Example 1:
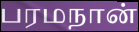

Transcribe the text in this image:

பரமநான்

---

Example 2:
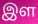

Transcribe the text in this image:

இள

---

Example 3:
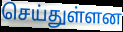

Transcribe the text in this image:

செய்துள்ளன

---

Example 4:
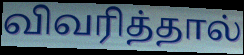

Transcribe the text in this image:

விவரித்தால்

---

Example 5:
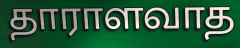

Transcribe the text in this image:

தாராளவாத